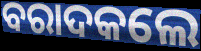
ବରାଦକଲେ